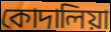
কোদালিয়া